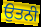
ਉਤਨੀ